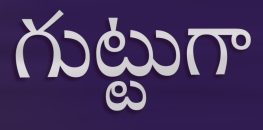
గుట్టుగా